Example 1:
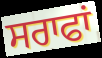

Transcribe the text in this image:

ਸਰਾਫਾਂ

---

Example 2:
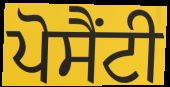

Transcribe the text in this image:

ਪੋਸੈਂਟੀ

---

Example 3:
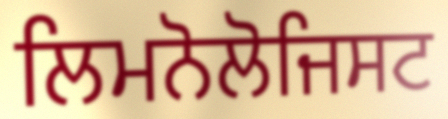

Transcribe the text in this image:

ਲਿਮਨੋਲੋਜਿਸਟ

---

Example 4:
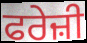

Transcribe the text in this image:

ਫਰੇਜ਼ੀ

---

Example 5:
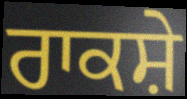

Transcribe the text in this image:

ਰਾਕਸ਼ੇ